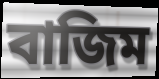
বাজিম